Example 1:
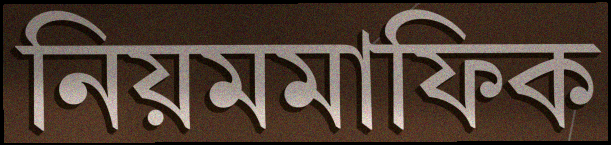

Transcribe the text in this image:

নিয়মমাফিক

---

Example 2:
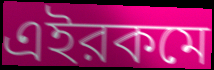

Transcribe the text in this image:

এইরকমে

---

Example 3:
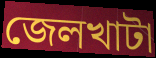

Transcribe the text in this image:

জেলখাটা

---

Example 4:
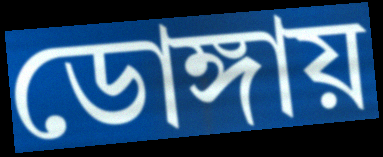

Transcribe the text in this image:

ডোঙ্গায়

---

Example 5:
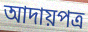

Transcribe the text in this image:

আদায়পত্র